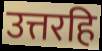
उत्तरहि